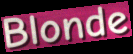
Blonde